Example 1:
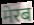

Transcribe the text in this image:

मेरब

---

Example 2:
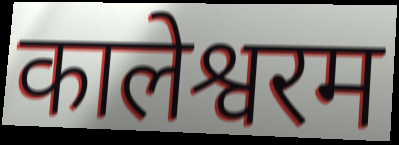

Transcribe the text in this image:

कालेश्वरम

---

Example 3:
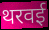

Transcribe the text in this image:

थरवई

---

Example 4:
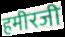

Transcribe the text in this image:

हमीरजी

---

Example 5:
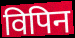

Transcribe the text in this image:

विपिन